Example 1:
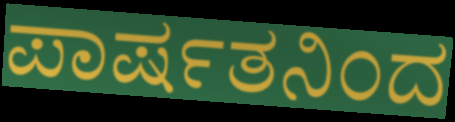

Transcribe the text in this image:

ಪಾರ್ಷತನಿಂದ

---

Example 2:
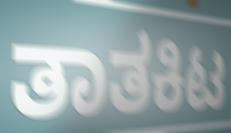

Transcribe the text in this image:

ತಾತಕಿಟ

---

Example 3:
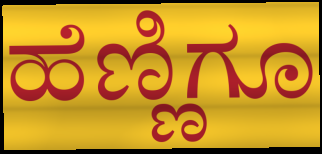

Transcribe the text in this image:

ಹೆಣ್ಣಿಗೂ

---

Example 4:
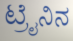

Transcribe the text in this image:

ಟ್ರೈನಿನ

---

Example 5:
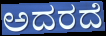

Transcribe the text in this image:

ಅದರದೆ